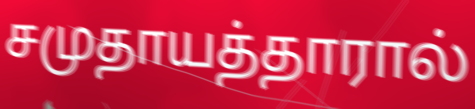
சமுதாயத்தாரால்